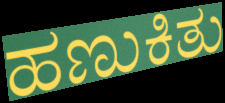
ಹಣುಕಿತು